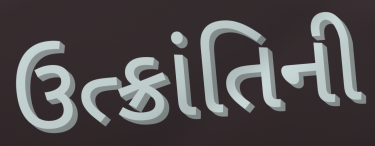
ઉત્ક્રાંતિની